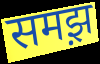
समझ़